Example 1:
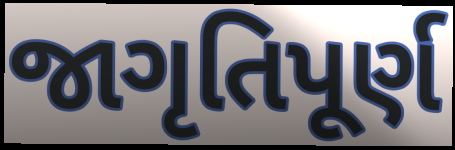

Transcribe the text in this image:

જાગૃતિપૂર્ણ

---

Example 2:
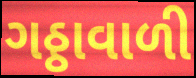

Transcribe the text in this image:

ગઠ્ઠાવાળી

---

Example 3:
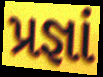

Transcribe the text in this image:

પ્રજ્ઞાં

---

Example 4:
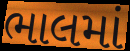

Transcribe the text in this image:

ભાલમાં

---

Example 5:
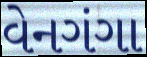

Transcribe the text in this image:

વેનગંગા